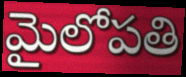
మైలోపతి